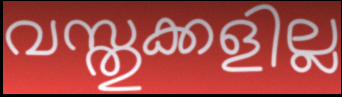
വസ്തുക്കളില്ല